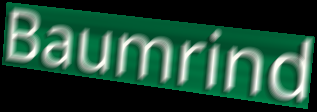
Baumrind